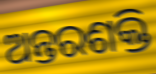
ଅନ୍ତରଶକ୍ତି